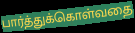
பார்த்துக்கொள்வதை